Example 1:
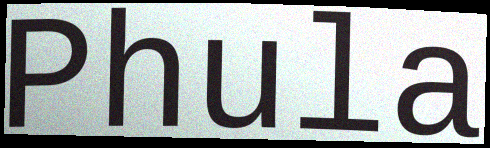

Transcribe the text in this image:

Phula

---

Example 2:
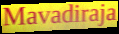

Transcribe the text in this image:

Mavadiraja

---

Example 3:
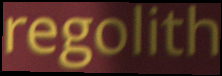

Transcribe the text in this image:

regolith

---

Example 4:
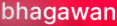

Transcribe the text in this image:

bhagawan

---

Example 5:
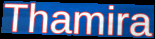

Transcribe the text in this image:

Thamira